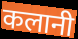
कलानी